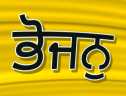
ਭੋਜਨੁ